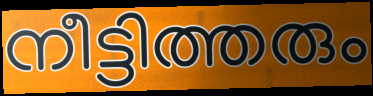
നീട്ടിത്തരും